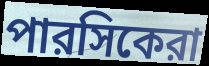
পারসিকেরা